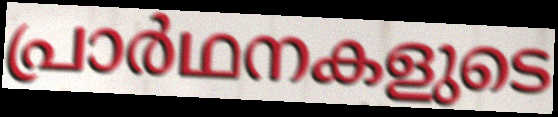
പ്രാർഥനകളുടെ